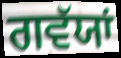
ਗਵੱਯਾਂ